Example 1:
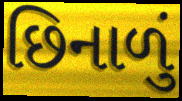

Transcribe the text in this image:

છિનાળું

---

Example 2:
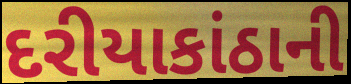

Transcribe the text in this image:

દરીયાકાંઠાની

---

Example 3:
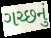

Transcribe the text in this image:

ગચ્છનું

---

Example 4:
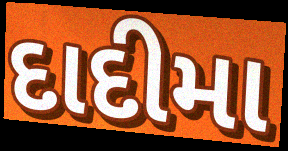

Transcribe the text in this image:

દાદીમા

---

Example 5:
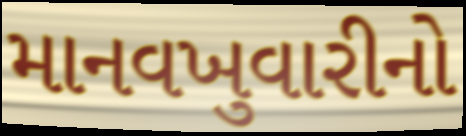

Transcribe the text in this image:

માનવખુવારીનો